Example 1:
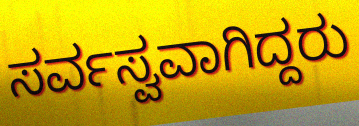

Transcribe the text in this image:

ಸರ್ವಸ್ವವಾಗಿದ್ದರು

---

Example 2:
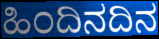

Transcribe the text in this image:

ಹಿಂದಿನದಿನ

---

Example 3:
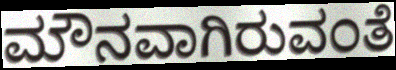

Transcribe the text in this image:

ಮೌನವಾಗಿರುವಂತೆ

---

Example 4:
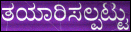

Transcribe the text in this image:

ತಯಾರಿಸಲ್ಪಟ್ಟು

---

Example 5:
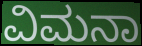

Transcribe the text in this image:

ವಿಮನಾ